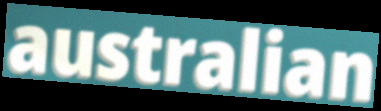
australian